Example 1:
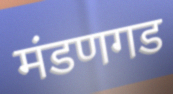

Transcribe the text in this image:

मंडणगड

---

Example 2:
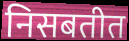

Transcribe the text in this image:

निसबतीत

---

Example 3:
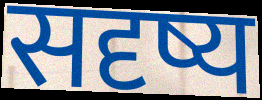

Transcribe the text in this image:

सदृष्य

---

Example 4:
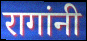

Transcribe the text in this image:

रागांनी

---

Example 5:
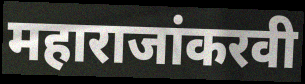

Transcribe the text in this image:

महाराजांकरवी